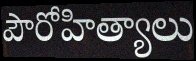
పౌరోహిత్యాలు